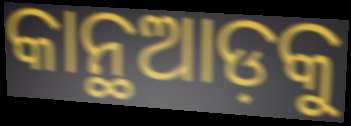
କାନ୍ଥଆଡ଼କୁ